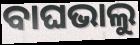
ବାଘଭାଲୁ